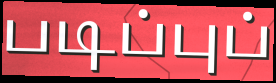
படிப்புப்